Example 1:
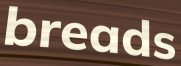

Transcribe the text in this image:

breads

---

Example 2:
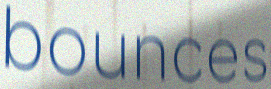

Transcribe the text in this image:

bounces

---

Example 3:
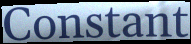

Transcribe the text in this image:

Constant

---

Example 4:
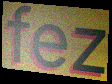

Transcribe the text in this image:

fez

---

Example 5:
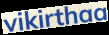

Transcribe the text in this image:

vikirthaa